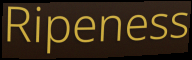
Ripeness